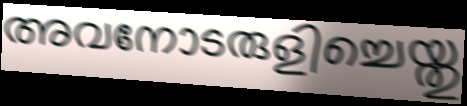
അവനോടരുളിച്ചെയ്തു